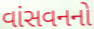
વાંસવનનો